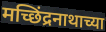
मच्छिंद्रनाथाच्या